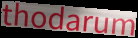
thodarum